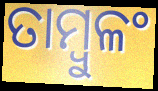
ତାମ୍ବୁଳଂ